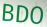
BDO